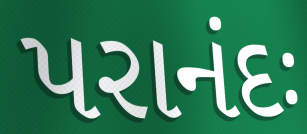
પરાનંદઃ